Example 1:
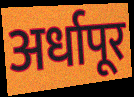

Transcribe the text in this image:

अर्धापूर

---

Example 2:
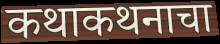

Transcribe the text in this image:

कथाकथनाचा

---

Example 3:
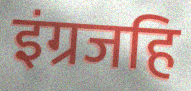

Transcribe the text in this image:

इंग्रजहि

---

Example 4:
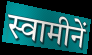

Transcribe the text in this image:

स्वामीनें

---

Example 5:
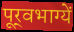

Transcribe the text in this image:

पूर्वभाग्यें